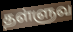
தள்ளுவ